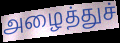
அழைத்துச்